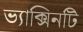
ভ্যাক্সিনটি